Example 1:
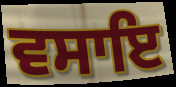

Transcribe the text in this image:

ਵਸਾਇ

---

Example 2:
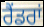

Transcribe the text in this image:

ਰੈਂਡਰਾਂ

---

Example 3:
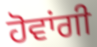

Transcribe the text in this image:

ਹੋਵਾਂਗੀ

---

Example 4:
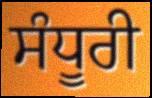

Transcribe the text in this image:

ਸੰਧੂਰੀ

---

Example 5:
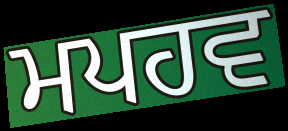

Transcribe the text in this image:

ਮਪਹਵ